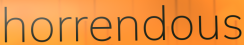
horrendous